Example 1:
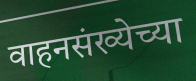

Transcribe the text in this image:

वाहनसंख्येच्या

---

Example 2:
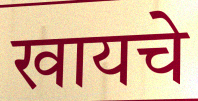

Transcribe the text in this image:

खायचे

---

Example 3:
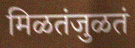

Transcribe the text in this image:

मिळतंजुळतं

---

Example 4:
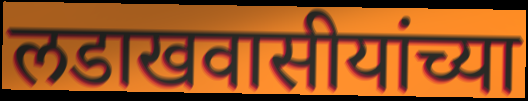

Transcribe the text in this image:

लडाखवासीयांच्या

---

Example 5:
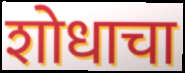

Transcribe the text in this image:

शोधाचा